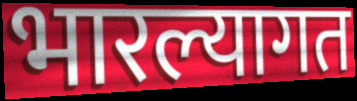
भारल्यागत